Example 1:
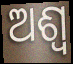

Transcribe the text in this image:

ଅଶ୍ବ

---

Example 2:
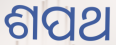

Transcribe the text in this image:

ଶପଥ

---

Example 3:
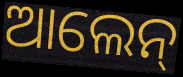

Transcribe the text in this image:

ଆଲେନ୍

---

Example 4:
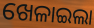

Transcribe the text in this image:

ଖେଳାଇଲା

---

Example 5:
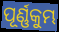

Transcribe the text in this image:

ପୂର୍ଣ୍ଣକୁମ୍ଭ